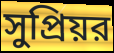
সুপ্রিয়র